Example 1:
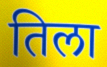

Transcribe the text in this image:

तिला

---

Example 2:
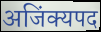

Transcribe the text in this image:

अजिंक्यपद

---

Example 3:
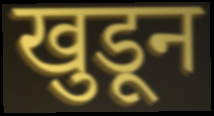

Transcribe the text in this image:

खुडून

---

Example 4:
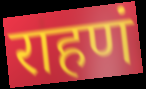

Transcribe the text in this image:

राहणं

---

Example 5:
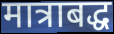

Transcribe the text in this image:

मात्राबद्ध